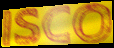
ISCO